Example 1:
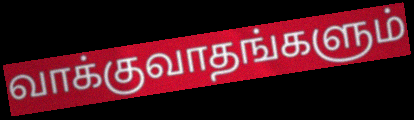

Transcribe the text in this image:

வாக்குவாதங்களும்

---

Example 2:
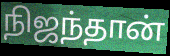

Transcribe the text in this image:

நிஜந்தான்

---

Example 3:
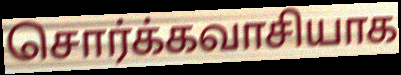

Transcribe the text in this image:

சொர்க்கவாசியாக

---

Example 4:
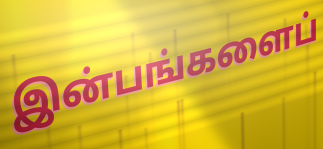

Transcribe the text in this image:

இன்பங்களைப்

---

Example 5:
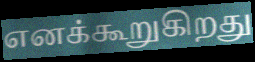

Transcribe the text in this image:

எனக்கூறுகிறது